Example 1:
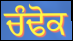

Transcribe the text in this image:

ਚੰਢੋਕ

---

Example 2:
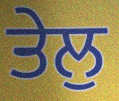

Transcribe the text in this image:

ਤੇਲੁ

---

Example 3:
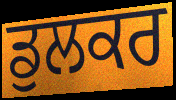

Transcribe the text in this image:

ਡੁਲਕਰ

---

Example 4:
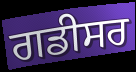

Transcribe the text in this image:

ਗਡੀਸਰ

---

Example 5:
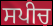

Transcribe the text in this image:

ਸਪੀਚ